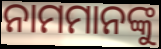
ନାମମାନଙ୍କୁ